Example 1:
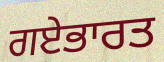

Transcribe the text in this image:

ਗਏਭਾਰਤ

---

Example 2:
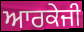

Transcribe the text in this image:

ਆਰਕੇਜੀ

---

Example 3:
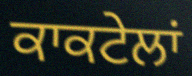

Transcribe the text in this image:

ਕਾਕਟੇਲਾਂ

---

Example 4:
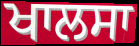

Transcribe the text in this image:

ਖਾਲਸਾ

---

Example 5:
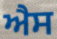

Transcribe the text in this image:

ਐਸ